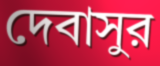
দেবাসুর